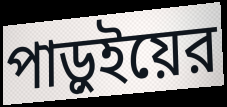
পাড়ুইয়ের